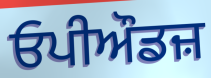
ਓਪੀਔਡਜ਼